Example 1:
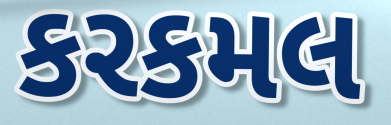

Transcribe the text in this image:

કરકમલ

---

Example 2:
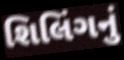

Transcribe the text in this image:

શિલિંગનું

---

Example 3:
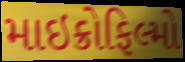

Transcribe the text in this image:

માઇક્રોફિલ્મો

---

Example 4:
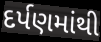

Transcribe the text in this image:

દર્પણમાંથી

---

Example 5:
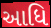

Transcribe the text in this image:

આધિ